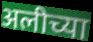
अलीच्या